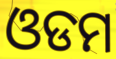
ଓଡମ